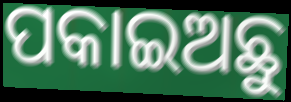
ପକାଇଅଛୁ